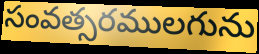
సంవత్సరములగును